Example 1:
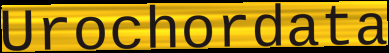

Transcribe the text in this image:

Urochordata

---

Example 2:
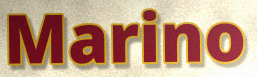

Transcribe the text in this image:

Marino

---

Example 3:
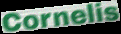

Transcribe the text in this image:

Cornelis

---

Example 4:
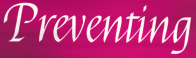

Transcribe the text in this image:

Preventing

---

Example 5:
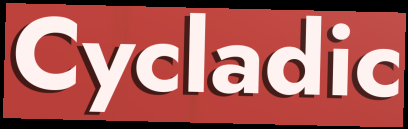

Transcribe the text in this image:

Cycladic